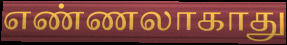
எண்ணலாகாது